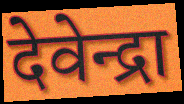
देवेन्द्रा